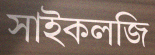
সাইকলজি